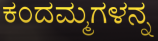
ಕಂದಮ್ಮಗಳನ್ನ